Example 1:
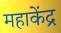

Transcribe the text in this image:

महाकेंद्र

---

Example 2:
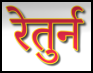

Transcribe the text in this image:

रेतुर्न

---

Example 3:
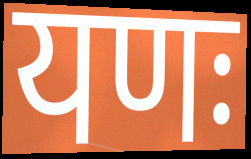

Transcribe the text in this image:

यणः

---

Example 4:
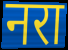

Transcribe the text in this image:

नरा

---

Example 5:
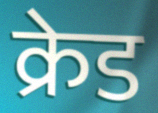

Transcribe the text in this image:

क्रेड